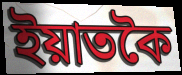
ইয়াতকৈ